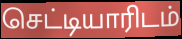
செட்டியாரிடம்